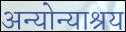
अन्योन्याश्रय